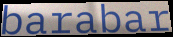
barabar